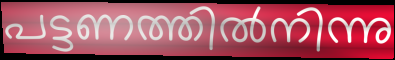
പട്ടണത്തിൽനിന്നു